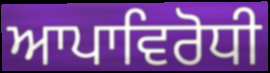
ਆਪਾਵਿਰੋਧੀ